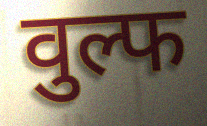
वुल्फ